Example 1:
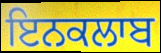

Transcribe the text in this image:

ਇਨਕਲਾਬ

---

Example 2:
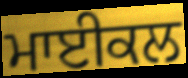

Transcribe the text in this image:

ਮਾਈਕਲ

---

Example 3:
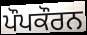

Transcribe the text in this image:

ਪੌਪਕੌਰਨ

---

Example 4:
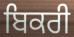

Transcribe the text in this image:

ਬਿਕਰੀ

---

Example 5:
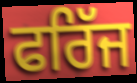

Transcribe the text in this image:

ਫਰਿੱਜ